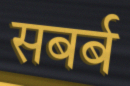
सबर्ब